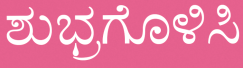
ಶುಭ್ರಗೊಳಿಸಿ